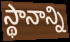
స్థానాన్ని